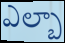
ఎల్బా